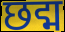
छद्म